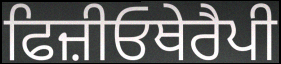
ਫਿਜ਼ੀਓਥੇਰੈਪੀ